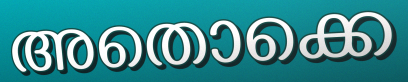
അതൊക്കെ